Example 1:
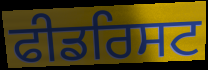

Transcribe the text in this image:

ਫੀਡਰਿਸਟ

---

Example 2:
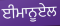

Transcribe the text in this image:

ਈਮਾਨੂਏਲ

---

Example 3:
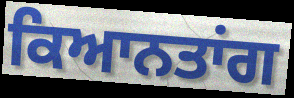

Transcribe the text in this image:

ਕਿਆਨਤਾਂਗ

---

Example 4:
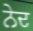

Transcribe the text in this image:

ਨੇਦ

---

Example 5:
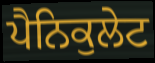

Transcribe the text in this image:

ਪੈਨਿਕੁਲੇਟ